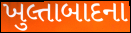
ખુલ્તાબાદના